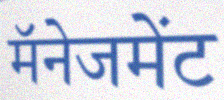
मॅनेजमेंट